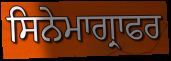
ਸਿਨੇਮਾਗ੍ਰਾਫਰ